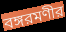
বঙ্গরমণীর